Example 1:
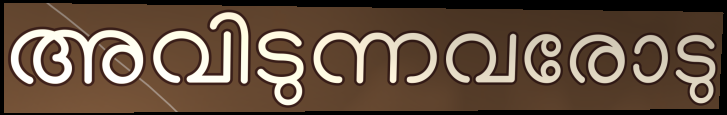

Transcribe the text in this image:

അവിടുന്നവരോടു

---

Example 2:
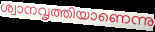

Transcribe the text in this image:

ശ്വാനവൃത്തിയാണെന്നു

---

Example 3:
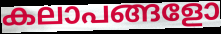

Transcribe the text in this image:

കലാപങ്ങളോ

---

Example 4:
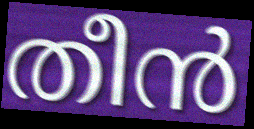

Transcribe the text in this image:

തീൻ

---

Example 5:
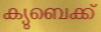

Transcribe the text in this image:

ക്യുബെക്ക്